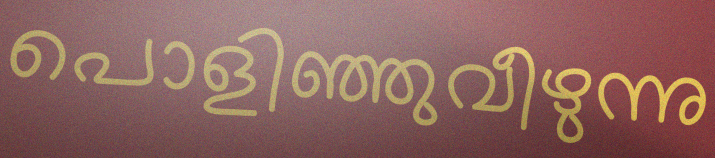
പൊളിഞ്ഞുവീഴുന്നു